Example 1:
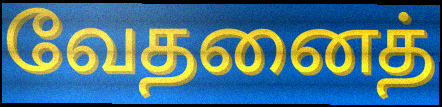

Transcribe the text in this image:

வேதனைத்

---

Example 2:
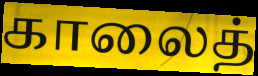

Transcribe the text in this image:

காலைத்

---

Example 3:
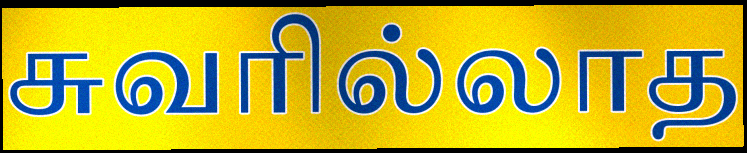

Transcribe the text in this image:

சுவரில்லாத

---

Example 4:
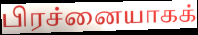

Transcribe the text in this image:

பிரச்னையாகக்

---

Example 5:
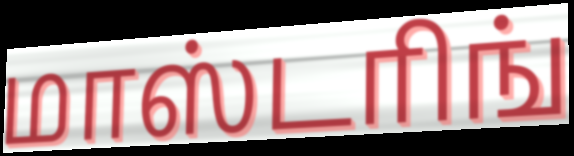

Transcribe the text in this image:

மாஸ்டரிங்